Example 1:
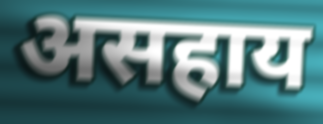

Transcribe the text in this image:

असहाय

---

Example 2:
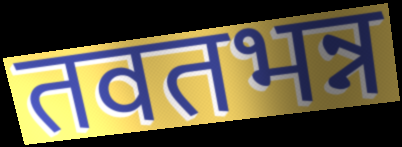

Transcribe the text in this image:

तवतभन्न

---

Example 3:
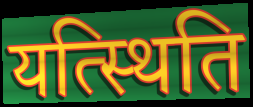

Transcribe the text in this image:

यत्स्थिति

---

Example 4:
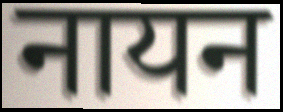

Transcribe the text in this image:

नायन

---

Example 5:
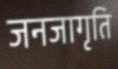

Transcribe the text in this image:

जनजागृति